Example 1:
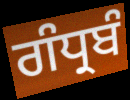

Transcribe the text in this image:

ਗੰਧ੍ਰਬੰ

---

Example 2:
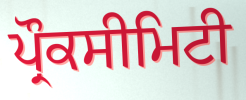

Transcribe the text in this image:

ਪ੍ਰੌਕਸੀਮਿਟੀ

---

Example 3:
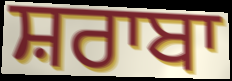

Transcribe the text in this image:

ਸ਼ਰਾਬਾ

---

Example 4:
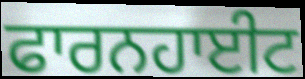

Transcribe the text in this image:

ਫਾਰਨਹਾਈਟ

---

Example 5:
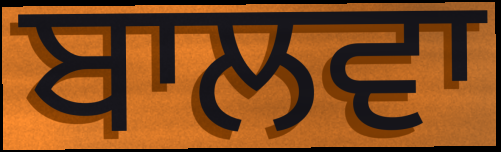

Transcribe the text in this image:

ਬਾਲਵਾ